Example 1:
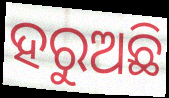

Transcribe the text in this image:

ହରୁଅଛି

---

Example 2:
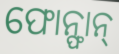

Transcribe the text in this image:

ଫୋନ୍ଫାନ୍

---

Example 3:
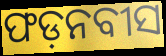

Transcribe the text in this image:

ଫଡ଼ନବୀସ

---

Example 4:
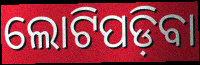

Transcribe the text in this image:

ଲୋଟିପଡ଼ିବା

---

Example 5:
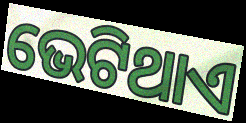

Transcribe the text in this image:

ଭେଟିଥାଏ